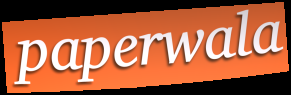
paperwala